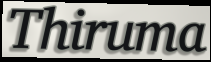
Thiruma